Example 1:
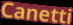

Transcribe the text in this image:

Canetti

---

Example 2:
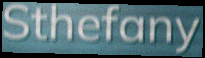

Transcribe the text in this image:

Sthefany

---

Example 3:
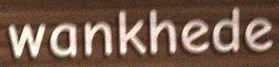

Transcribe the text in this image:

wankhede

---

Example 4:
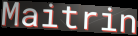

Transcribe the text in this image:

Maitrin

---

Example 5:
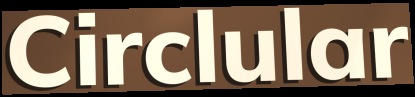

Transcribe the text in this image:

Circlular